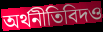
অর্থনীতিবিদও